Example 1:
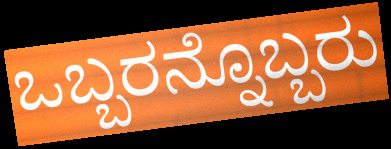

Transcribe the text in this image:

ಒಬ್ಬರನ್ನೊಬ್ಬರು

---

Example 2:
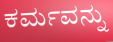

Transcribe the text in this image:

ಕರ್ಮವನ್ನು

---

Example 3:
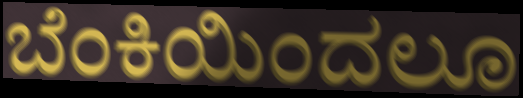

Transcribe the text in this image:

ಬೆಂಕಿಯಿಂದಲೂ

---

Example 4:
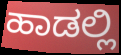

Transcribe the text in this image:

ಹಾಡಲ್ಲಿ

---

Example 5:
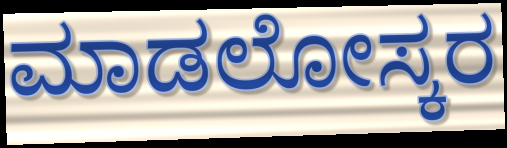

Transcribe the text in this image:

ಮಾಡಲೋಸ್ಕರ